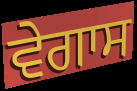
ਵੇਗਾਸ